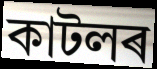
কাটলৰ